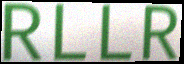
RLLR